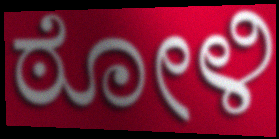
ಠೋಳಿ